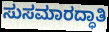
ಸುಸಮಾರದ್ಧಾತಿ